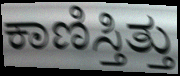
ಕಾಣಿಸ್ತಿತ್ತು